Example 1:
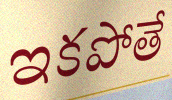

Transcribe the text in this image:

ఇకపోతే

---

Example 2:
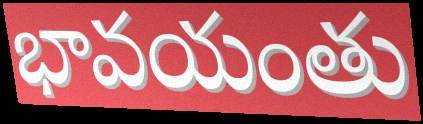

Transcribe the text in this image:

భావయంతు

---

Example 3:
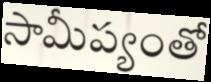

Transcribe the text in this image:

సామీప్యంతో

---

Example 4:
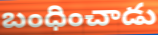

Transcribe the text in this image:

బంధించాడు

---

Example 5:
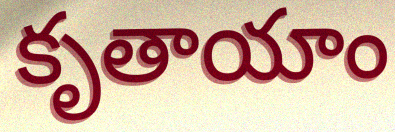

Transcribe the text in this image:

కృతాయాం